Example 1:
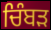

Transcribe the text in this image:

ਚਿੰਬੜ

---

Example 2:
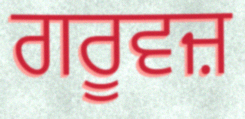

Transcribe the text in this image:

ਗਰੂਵਜ਼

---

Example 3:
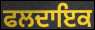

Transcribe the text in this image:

ਫਲਦਾਇਕ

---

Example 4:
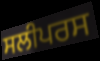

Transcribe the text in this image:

ਸਲੀਪਰਸ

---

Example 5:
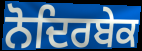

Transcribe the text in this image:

ਨੋਦਿਰਬੇਕ